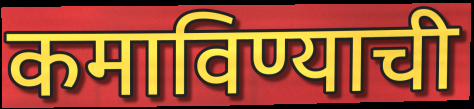
कमाविण्याची